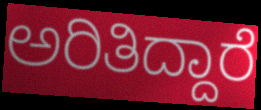
ಅರಿತಿದ್ದಾರೆ